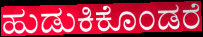
ಹುಡುಕಿಕೊಂಡರೆ